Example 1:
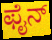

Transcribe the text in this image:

ಫೈನ್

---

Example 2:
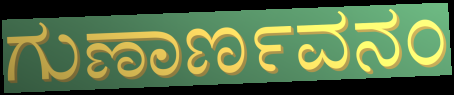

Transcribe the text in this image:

ಗುಣಾರ್ಣವನಂ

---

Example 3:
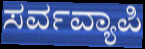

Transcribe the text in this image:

ಸರ್ವವ್ಯಾಪಿ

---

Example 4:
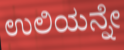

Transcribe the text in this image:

ಉಲಿಯನ್ನೇ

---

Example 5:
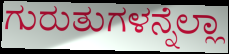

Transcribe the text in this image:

ಗುರುತುಗಳನ್ನೆಲ್ಲಾ